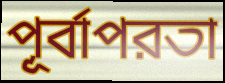
পূর্বাপরতা